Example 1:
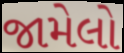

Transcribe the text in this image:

જામેલો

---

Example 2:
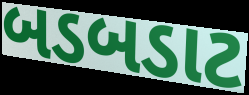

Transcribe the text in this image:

બડબડાટ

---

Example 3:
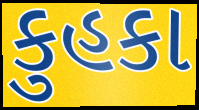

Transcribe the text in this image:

કુહકા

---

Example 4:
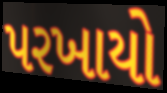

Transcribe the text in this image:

પરખાયો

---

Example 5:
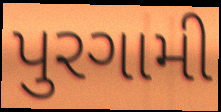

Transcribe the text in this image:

પુરગામી